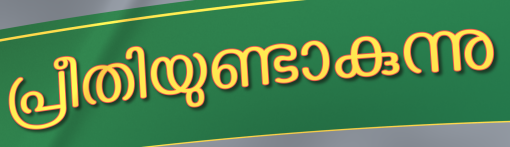
പ്രീതിയുണ്ടാകുന്നു